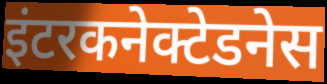
इंटरकनेक्टेडनेस